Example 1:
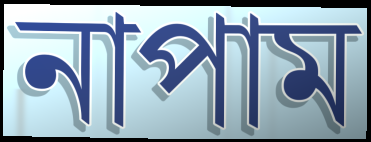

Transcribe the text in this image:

নাপাম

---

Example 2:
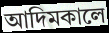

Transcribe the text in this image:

আদিমকালে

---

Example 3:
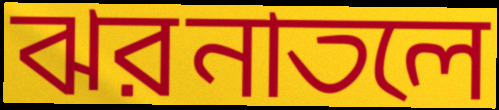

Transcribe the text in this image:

ঝরনাতলে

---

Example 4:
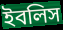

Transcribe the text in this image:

ইবলিস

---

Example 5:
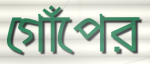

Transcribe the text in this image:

গোঁপের